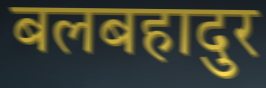
बलबहादुर